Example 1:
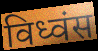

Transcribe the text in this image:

विध्वंस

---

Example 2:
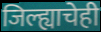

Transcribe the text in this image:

जिल्ह्याचेही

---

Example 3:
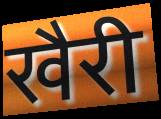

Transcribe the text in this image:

खैरी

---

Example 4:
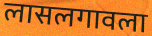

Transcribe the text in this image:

लासलगावला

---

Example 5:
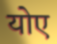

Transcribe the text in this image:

योए